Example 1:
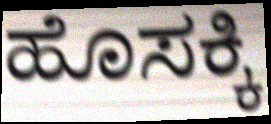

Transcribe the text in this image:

ಹೊಸಕ್ಕಿ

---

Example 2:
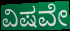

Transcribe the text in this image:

ವಿಷವೇ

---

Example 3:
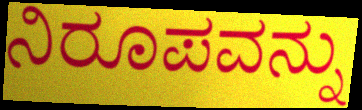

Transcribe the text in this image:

ನಿರೂಪವನ್ನು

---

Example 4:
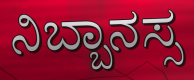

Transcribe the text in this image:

ನಿಬ್ಬಾನಸ್ಸ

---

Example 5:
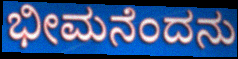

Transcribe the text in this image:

ಭೀಮನೆಂದನು